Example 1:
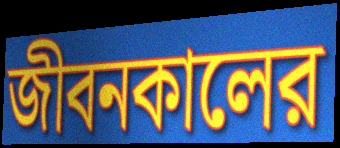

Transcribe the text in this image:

জীবনকালের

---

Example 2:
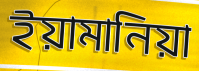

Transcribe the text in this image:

ইয়ামানিয়া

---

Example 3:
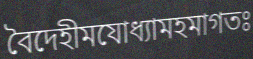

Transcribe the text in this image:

বৈদেহীমযোধ্যামহমাগতঃ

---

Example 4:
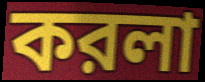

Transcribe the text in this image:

করলা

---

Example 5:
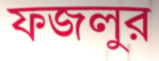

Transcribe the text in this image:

ফজলুর